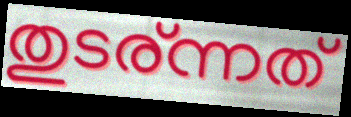
തുടര്ന്നത്